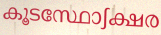
കൂടസ്ഥോഽക്ഷര